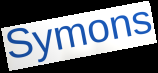
Symons